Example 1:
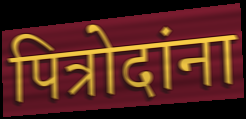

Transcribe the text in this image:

पित्रोदांना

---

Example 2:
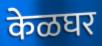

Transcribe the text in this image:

केळघर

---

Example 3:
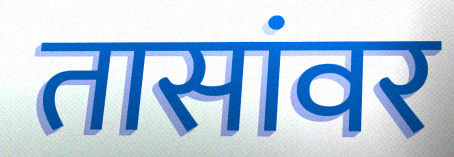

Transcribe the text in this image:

तासांवर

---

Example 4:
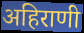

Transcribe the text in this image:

अहिराणी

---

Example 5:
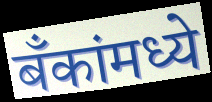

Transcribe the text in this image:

बँकांमध्ये